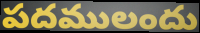
పదములందు